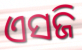
ଏସଜି